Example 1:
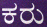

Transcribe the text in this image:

ಕರು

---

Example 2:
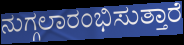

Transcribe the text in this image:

ನುಗ್ಗಲಾರಂಭಿಸುತ್ತಾರೆ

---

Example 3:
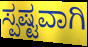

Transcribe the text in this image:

ಸ್ಪಷ್ಟವಾಗಿ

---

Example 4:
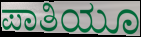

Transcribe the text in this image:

ಪಾತಿಯೂ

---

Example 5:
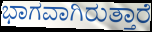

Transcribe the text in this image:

ಭಾಗವಾಗಿರುತ್ತಾರೆ